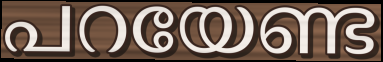
പറയേണ്ട